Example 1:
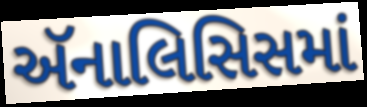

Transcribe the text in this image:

ઍનાલિસિસમાં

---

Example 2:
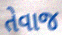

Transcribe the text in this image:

તેવાજ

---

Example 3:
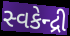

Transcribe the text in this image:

સ્વકેન્દ્રી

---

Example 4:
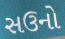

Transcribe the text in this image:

સઉનો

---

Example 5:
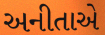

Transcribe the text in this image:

અનીતાએ